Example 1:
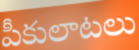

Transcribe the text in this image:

పీకులాటలు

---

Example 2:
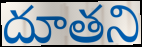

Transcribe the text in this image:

దూతని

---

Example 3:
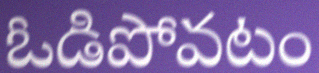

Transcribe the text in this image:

ఓడిపోవటం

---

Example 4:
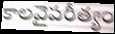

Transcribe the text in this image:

కాలవైపరీత్యం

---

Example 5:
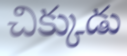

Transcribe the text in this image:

చిక్కుడు